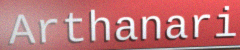
Arthanari